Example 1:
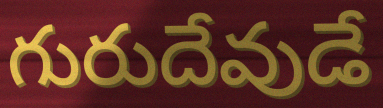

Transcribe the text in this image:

గురుదేవుడే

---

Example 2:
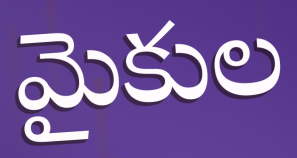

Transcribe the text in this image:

మైకుల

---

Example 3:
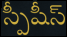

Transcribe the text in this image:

స్పీషీస్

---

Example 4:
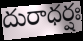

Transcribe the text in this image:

దురాధర్షః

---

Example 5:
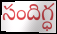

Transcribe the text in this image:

సందిగ్ధ